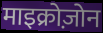
माइक्रोज़ोन